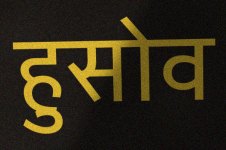
हुसोव